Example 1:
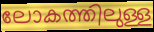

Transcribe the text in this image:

ലോകത്തിലുള്ള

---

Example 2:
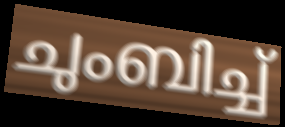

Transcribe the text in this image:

ചുംബിച്ച്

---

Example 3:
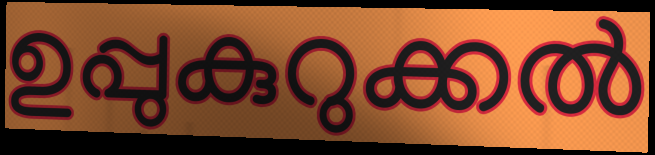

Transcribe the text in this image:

ഉപ്പുകുറുക്കൽ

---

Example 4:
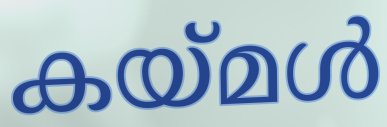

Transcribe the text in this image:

കയ്മൾ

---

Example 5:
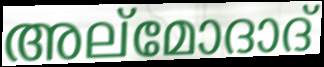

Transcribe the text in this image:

അല്മോദാദ്